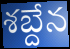
శబ్దేన